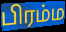
பிரம்ம